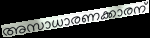
അസാധാരണക്കാരന്